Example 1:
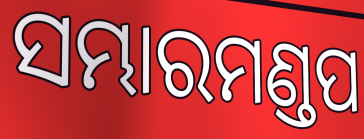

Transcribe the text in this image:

ସମ୍ଭାରମଣ୍ଡପ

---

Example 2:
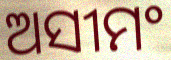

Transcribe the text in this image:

ଅସୀମଂ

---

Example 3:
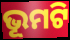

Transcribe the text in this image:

ଭୂମଟି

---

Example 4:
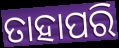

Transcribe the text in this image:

ତାହାପରି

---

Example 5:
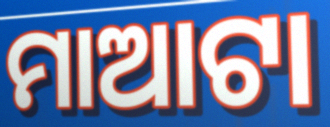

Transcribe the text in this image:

ମାଆଟା